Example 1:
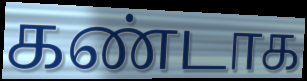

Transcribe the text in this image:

கண்டாக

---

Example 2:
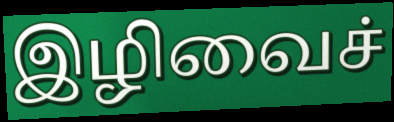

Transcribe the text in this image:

இழிவைச்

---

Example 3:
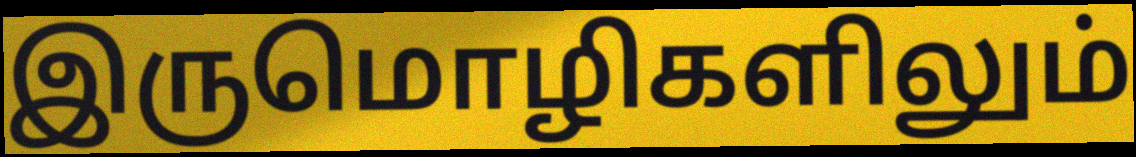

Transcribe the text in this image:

இருமொழிகளிலும்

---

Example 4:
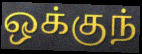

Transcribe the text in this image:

ஒக்குந்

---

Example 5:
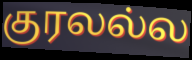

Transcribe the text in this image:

குரலல்ல